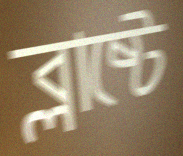
ব্লাষ্টে